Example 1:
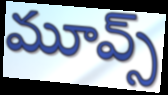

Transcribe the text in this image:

మూవ్స్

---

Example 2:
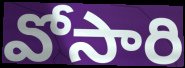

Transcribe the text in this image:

వోసారి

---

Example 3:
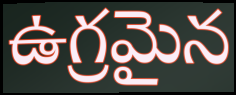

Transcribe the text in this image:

ఉగ్రమైన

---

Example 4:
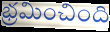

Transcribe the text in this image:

భ్రమించింది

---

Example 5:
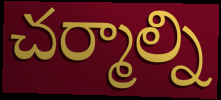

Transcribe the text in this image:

చర్మాల్ని